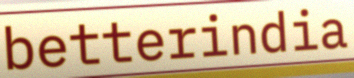
betterindia